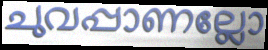
ചുവപ്പാണല്ലോ